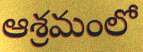
ఆశ్రమంలో